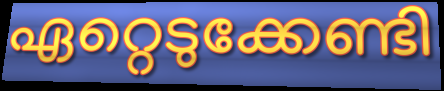
ഏറ്റെടുക്കേണ്ടി